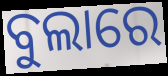
ବୁଲାରେ